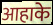
आहाके